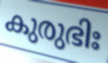
കുരുഭിഃ